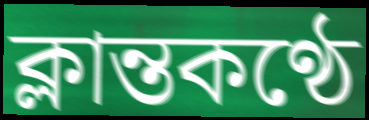
ক্লান্তকণ্ঠে